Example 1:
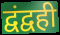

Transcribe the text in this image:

द्वंद्वही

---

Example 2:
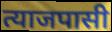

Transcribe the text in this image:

त्याजपासी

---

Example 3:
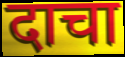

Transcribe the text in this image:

दाचा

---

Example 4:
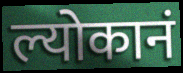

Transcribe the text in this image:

ल्योकानं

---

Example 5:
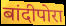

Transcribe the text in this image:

बांदीपोरा